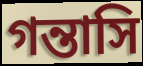
গন্তাসি